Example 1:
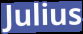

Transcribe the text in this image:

Julius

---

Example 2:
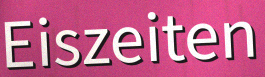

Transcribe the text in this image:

Eiszeiten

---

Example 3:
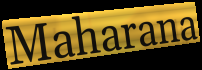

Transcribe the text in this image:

Maharana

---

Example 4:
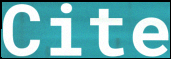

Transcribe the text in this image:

Cite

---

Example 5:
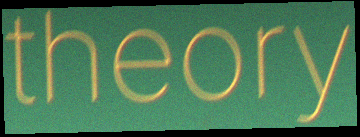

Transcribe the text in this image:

theory